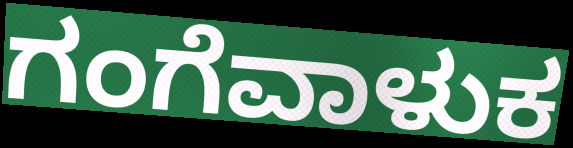
ಗಂಗೆವಾಳುಕ